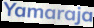
Yamaraja